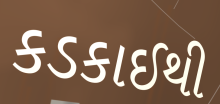
કડકાઈથી